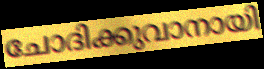
ചോദിക്കുവാനായി